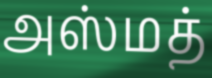
அஸ்மத்